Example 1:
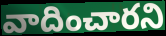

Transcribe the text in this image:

వాదించారని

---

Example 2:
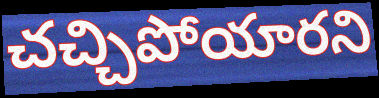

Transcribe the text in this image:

చచ్చిపోయారని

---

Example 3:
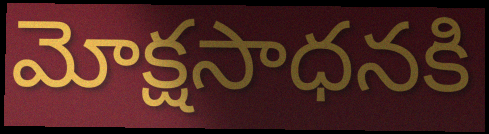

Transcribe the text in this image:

మోక్షసాధనకి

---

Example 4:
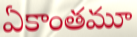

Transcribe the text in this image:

ఏకాంతమూ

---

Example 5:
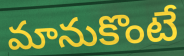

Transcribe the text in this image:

మానుకొంటే